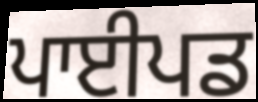
ਪਾਈਪਡ